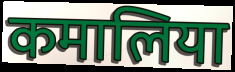
कमालिया